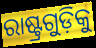
ରାଷ୍ଟ୍ରଗୁଡ଼ିକୁ